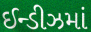
ઈન્ડીઝમાં